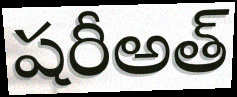
షరీఅత్